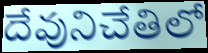
దేవునిచేతిలో